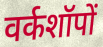
वर्कशॉपों